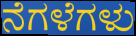
ನೆಗಳೆಗಳು